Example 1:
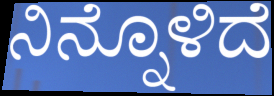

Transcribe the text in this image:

ನಿನ್ನೊಳಿದೆ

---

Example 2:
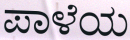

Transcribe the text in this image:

ಪಾಳೆಯ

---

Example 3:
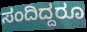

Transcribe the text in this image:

ಸಂದಿದ್ದರೂ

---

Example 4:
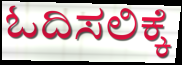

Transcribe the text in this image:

ಓದಿಸಲಿಕ್ಕೆ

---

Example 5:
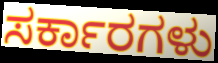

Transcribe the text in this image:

ಸರ್ಕಾರಗಳು